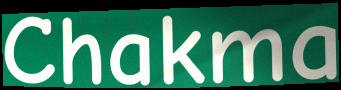
Chakma